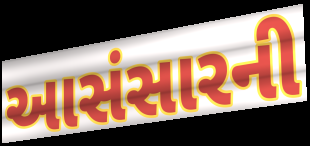
આસંસારની